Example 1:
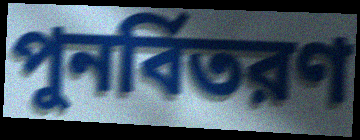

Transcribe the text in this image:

পুনর্বিতরণ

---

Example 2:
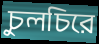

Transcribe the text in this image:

চুলচিরে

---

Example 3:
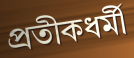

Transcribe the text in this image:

প্রতীকধর্মী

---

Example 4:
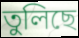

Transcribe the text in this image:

তুলিছে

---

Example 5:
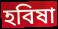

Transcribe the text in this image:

হবিষা